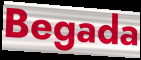
Begada